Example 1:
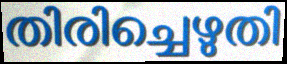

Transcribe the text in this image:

തിരിച്ചെഴുതി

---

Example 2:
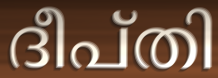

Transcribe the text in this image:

ദീപ്തി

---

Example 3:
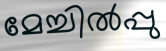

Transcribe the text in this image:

മേച്ചിൽപ്പു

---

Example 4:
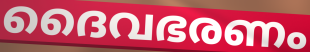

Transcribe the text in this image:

ദൈവഭരണം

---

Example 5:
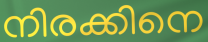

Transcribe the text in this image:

നിരക്കിനെ